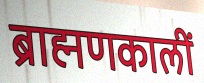
ब्राह्मणकालीं